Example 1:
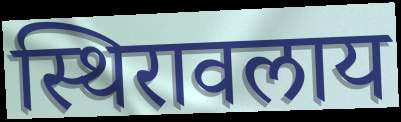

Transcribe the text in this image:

स्थिरावलाय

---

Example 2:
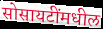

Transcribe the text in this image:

सोसायटींमधील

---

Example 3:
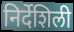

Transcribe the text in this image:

निर्देशिली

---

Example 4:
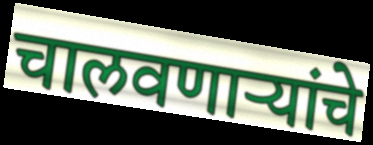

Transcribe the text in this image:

चालवणाऱ्यांचे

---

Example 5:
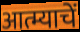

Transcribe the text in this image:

आत्म्याचें